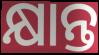
କ୍ଷାନ୍ତ